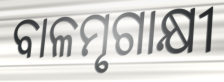
ବାଳମୃଗାକ୍ଷୀ